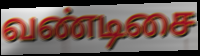
வண்டிசை